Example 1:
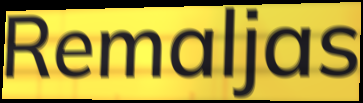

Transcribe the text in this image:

Remaljas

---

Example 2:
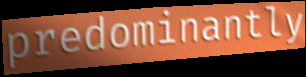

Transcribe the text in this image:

predominantly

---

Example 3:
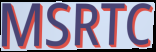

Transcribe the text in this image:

MSRTC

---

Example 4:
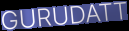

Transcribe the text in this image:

GURUDATT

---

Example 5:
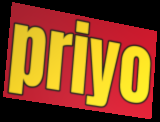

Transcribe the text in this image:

priyo